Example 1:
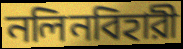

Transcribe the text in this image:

নলিনবিহারী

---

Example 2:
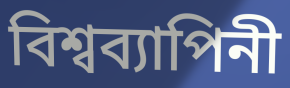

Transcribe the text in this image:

বিশ্বব্যাপিনী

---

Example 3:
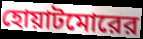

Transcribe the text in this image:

হোয়াটমোরের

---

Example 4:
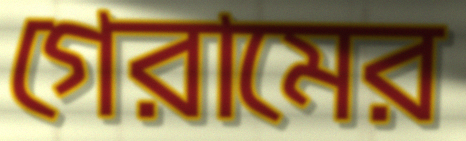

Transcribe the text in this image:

গেরামের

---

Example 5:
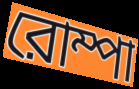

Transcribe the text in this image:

রোম্পা